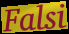
Falsi